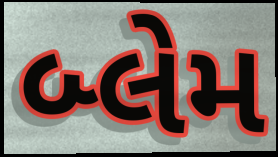
બ્લેમ